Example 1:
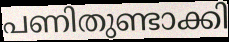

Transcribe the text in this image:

പണിതുണ്ടാക്കി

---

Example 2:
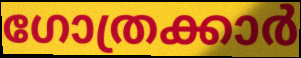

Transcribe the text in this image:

ഗോത്രക്കാർ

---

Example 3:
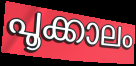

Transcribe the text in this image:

പൂക്കാലം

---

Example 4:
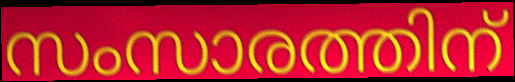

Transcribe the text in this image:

സംസാരത്തിന്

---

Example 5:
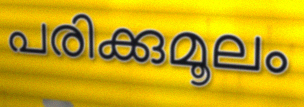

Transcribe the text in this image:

പരിക്കുമൂലം